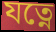
যত্নে